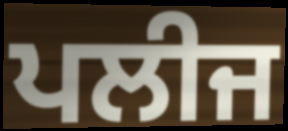
ਪਲੀਜ